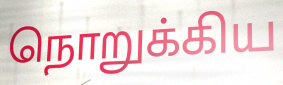
நொறுக்கிய